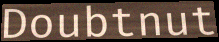
Doubtnut